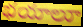
భయాలూ